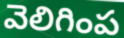
వెలిగింప